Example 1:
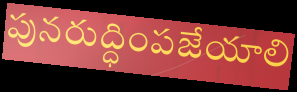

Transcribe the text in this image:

పునరుద్ధింపజేయాలి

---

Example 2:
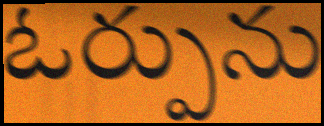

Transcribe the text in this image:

ఓర్పును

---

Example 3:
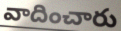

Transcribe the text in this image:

వాదించారు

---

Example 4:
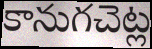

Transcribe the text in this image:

కానుగచెట్ల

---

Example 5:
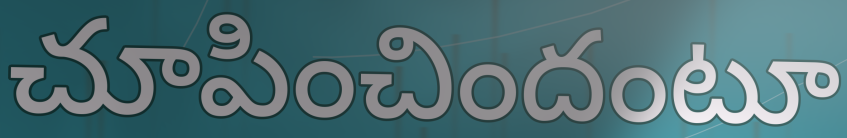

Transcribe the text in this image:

చూపించిందంటూ